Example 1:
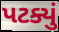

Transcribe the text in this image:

પટક્યું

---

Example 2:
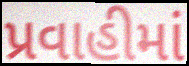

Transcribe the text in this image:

પ્રવાહીમાં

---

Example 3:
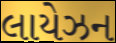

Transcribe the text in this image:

લાયેઝન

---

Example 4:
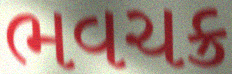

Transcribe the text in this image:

ભવચક્ર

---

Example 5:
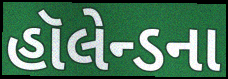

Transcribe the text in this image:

હૉલેન્ડના